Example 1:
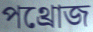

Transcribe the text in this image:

পথ্রোজ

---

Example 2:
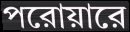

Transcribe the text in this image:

পরোয়ারে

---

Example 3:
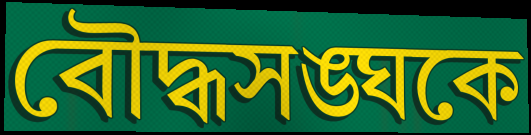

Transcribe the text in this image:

বৌদ্ধসঙ্ঘকে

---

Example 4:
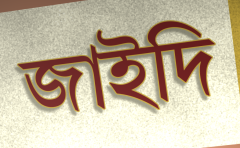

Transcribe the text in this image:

জাইদি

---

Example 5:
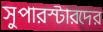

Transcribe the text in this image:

সুপারস্টারদের